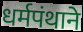
धर्मपंथाने